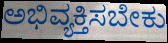
ಅಭಿವ್ಯಕ್ತಿಸಬೇಕು